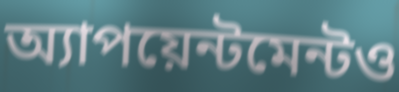
অ্যাপয়েন্টমেন্টও